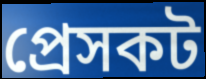
প্রেসকট